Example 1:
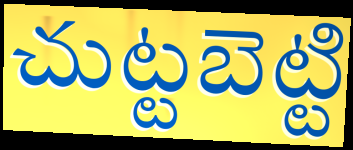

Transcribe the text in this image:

చుట్టబెట్టి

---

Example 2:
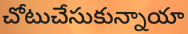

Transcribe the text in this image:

చోటుచేసుకున్నాయా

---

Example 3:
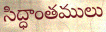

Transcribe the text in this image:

సిద్ధాంతములు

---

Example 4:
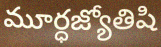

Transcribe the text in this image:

మూర్ధజ్యోతిషి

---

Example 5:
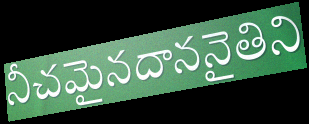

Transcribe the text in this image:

నీచమైనదాననైతిని